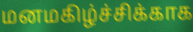
மனமகிழ்ச்சிக்காக